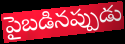
పైబడినప్పుడు